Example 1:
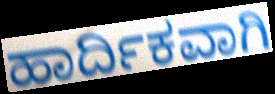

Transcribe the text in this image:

ಹಾರ್ದಿಕವಾಗಿ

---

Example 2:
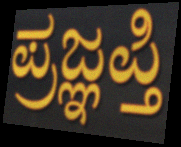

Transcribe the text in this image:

ಪ್ರಜ್ಞಪ್ತಿ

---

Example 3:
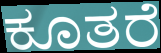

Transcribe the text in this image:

ಕೂತರೆ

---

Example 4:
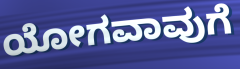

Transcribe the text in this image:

ಯೋಗವಾವುಗೆ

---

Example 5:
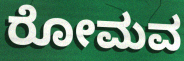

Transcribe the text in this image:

ರೋಮವ